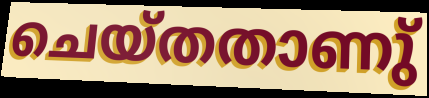
ചെയ്തതാണു്